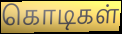
கொடிகள்